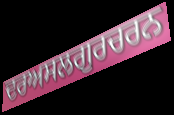
ਦਰਅਸਲਗੁਰਚਰਨ